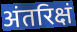
अंतरिक्षं